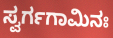
ಸ್ವರ್ಗಗಾಮಿನಃ